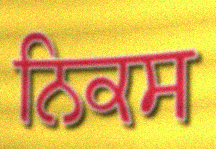
ਨਿਕਸ